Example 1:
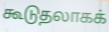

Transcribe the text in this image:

கூடுதலாகக்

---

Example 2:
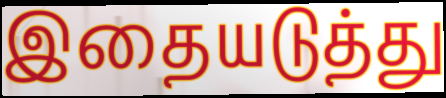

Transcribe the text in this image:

இதையடுத்து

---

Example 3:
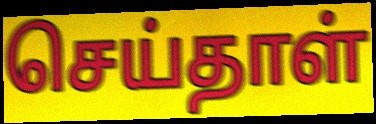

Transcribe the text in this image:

செய்தாள்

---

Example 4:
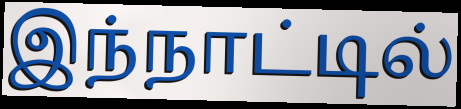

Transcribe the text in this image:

இந்நாட்டில்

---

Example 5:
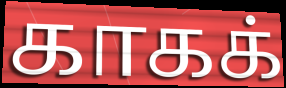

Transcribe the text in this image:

காகக்